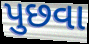
પુછવા